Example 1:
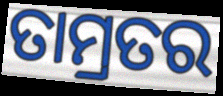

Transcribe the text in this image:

ତାମ୍ରତର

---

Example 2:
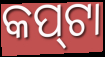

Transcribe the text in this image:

କପ୍‍ଟା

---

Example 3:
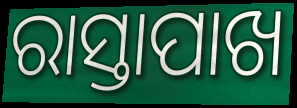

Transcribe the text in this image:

ରାସ୍ତାପାଖ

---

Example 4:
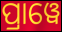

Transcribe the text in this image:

ପ୍ରାୱେ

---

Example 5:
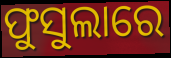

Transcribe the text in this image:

ଫୁସୁଲାରେ